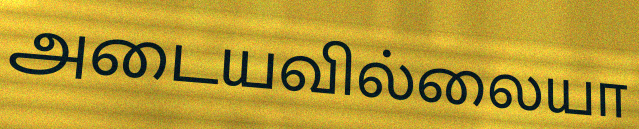
அடையவில்லையா